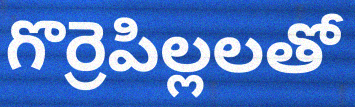
గొర్రెపిల్లలతో